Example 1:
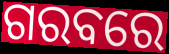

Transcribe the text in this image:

ଗରବରେ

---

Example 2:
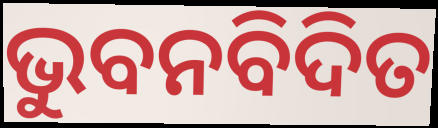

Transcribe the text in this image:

ଭୁବନବିଦିତ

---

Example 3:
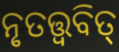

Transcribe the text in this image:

ନୃତତ୍ତ୍ୱବିତ୍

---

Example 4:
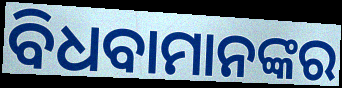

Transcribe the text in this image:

ବିଧବାମାନଙ୍କର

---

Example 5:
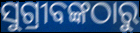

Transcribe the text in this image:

ସୁଗ୍ରୀବଙ୍କଠାରୁ